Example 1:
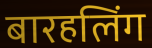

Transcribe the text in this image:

बारहलिंग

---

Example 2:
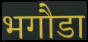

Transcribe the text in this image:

भगौडा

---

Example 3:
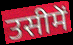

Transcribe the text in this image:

उसीमें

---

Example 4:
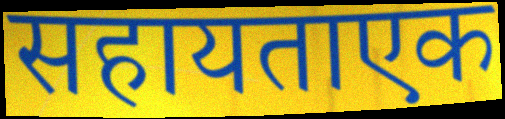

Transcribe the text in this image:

सहायताएक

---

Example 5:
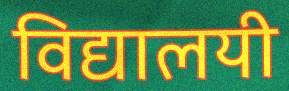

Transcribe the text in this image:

विद्यालयी